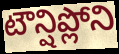
టౌన్షిప్లోని